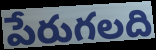
పేరుగలది